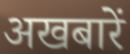
अखबारें